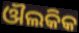
ଔଲକିକ